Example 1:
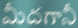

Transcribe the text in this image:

మీదగానీ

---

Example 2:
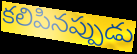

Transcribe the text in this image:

కలిపినప్పుడు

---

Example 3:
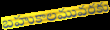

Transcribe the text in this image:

బహుకాలమువరకు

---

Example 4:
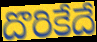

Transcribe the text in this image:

దొరికేదే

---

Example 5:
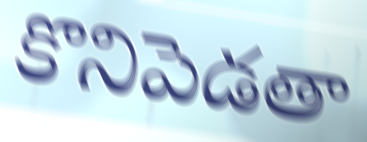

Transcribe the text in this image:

కొనిపెడతా